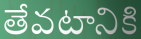
తేవటానికి